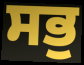
ਸਭੁ